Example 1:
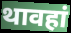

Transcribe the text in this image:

थावहां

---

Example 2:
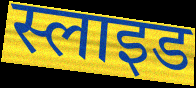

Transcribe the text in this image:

स्‍लाइड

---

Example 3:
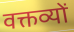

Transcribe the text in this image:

वक्तव्यों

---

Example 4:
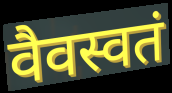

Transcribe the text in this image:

वैवस्वतं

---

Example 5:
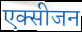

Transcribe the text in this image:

एक्सीजन